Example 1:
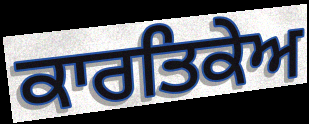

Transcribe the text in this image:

ਕਾਰਤਿਕੇਅ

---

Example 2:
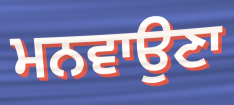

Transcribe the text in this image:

ਮਨਵਾਉਣਾ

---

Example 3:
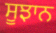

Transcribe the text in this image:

ਸੂਝਾਨ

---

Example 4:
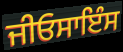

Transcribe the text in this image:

ਜੀਓਸਾਇੰਸ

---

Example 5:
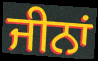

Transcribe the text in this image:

ਜੀਨਾਂ